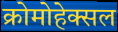
क्रोमोहेक्सल